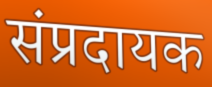
संप्रदायक